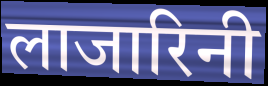
लाजारिनी